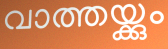
വാത്തയ്ക്കും